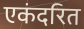
एकंदरित